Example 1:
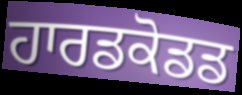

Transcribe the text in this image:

ਹਾਰਡਕੋਡਡ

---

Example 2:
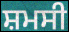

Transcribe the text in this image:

ਸ਼ਮਸੀ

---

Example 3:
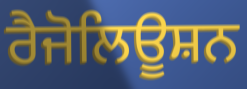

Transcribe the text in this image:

ਰੈਜੋਲਿਊਸ਼ਨ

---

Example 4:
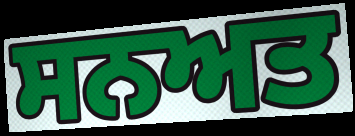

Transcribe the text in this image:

ਸਨਅਤ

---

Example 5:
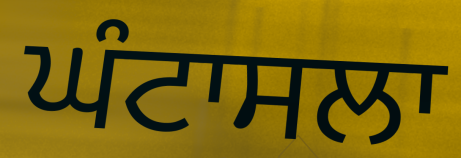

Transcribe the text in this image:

ਘੰਟਾਸਲਾ